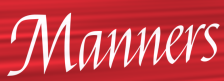
Manners